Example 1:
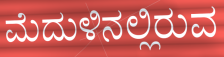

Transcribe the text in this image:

ಮೆದುಳಿನಲ್ಲಿರುವ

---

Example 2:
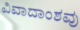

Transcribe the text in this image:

ವಿವಾದಾಂಶವು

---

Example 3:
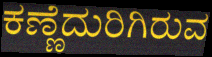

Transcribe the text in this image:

ಕಣ್ಣೆದುರಿಗಿರುವ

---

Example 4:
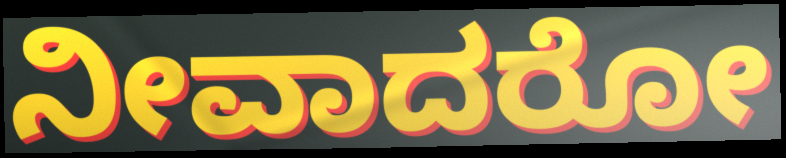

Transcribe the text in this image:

ನೀವಾದರೋ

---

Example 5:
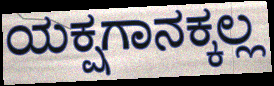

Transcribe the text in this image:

ಯಕ್ಷಗಾನಕ್ಕಲ್ಲ